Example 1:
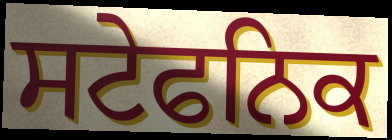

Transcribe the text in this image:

ਸਟੇਫਨਿਕ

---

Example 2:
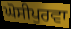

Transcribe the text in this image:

ਘੋਸੀਪੁਰਵਾ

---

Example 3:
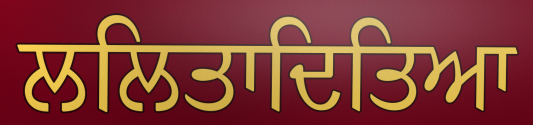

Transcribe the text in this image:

ਲਲਿਤਾਦਿਤਿਆ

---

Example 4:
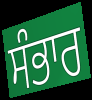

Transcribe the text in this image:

ਸੰਭਾਰ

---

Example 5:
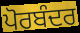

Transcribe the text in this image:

ਪੋਰਬੰਦਰ